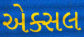
એક્સલ